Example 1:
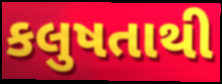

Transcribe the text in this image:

કલુષતાથી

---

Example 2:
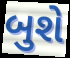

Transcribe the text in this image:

બુશે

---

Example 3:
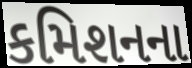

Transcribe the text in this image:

કમિશનના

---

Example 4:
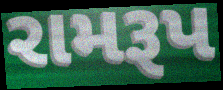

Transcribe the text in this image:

રામરૂપ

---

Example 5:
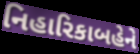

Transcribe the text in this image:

નિહારિકાબહેને